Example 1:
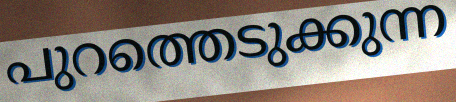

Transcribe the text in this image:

പുറത്തെടുക്കുന്ന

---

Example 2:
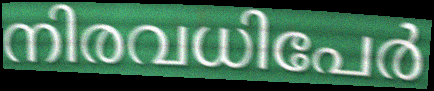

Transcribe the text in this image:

നിരവധിപേർ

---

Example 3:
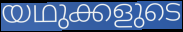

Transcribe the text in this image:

യഥുക്കളുടെ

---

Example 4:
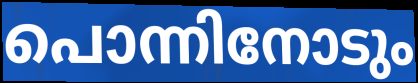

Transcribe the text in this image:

പൊന്നിനോടും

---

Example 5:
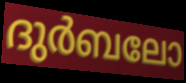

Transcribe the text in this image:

ദുർബലോ